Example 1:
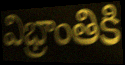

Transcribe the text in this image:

విభ్రాంతికి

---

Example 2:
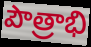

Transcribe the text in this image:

పౌత్రాభి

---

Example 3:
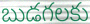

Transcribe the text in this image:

బుడగలకు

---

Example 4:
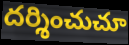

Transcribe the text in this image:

దర్శించుచూ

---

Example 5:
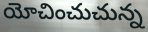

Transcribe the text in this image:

యోచించుచున్న